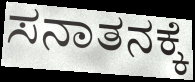
ಸನಾತನಕ್ಕೆ